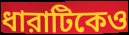
ধারাটিকেও